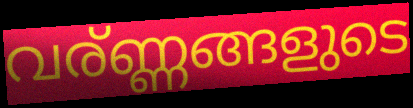
വര്ണ്ണങ്ങളുടെ